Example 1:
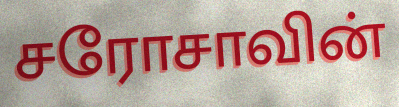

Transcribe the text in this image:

சரோசாவின்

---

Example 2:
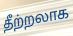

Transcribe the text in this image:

தீற்றலாக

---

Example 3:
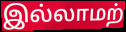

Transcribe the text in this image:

இல்லாமற்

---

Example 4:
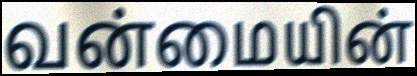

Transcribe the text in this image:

வன்மையின்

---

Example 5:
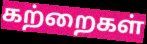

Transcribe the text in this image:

கற்றைகள்